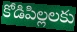
కోడిపిల్లలకు